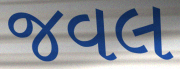
જવલ